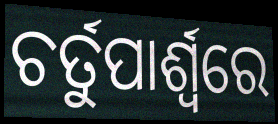
ଚର୍ତୁପାର୍ଶ୍ବରେ